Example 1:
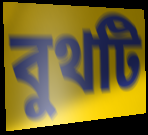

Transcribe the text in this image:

বুথটি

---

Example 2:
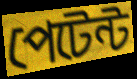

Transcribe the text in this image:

পেটেন্ট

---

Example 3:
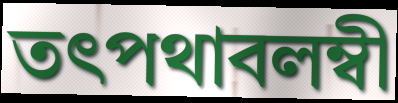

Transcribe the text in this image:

তৎপথাবলম্বী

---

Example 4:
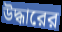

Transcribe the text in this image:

উদ্ধারের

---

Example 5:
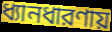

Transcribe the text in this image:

ধ্যানধারণায়